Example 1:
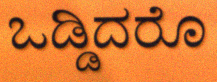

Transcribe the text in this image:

ಒಡ್ಡಿದರೊ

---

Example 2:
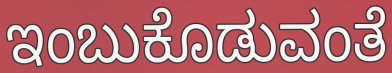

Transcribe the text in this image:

ಇಂಬುಕೊಡುವಂತೆ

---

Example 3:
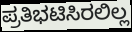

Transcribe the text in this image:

ಪ್ರತಿಭಟಿಸಿರಲಿಲ್ಲ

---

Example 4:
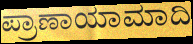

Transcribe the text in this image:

ಪ್ರಾಣಾಯಾಮಾದಿ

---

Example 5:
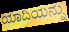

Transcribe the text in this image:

ಯಾದಿಯನ್ನು